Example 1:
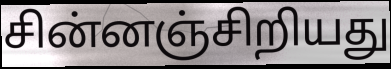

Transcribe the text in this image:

சின்னஞ்சிறியது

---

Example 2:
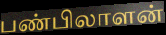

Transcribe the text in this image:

பண்பிலாளன்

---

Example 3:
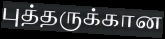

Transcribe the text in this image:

புத்தருக்கான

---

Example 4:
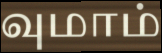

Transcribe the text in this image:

வுமாம்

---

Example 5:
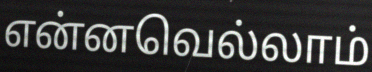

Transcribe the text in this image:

என்னவெல்லாம்